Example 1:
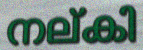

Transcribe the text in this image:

നല്‌കി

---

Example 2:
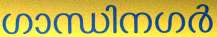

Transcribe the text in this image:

ഗാന്ധിനഗർ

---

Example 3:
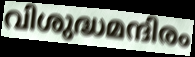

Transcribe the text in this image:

വിശുദ്ധമന്ദിരം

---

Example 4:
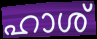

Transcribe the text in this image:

ഹാശ്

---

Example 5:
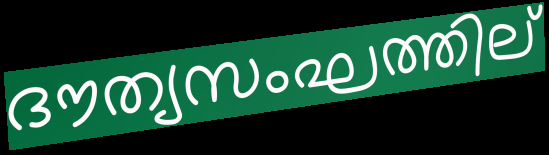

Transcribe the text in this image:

ദൗത്യസംഘത്തില്